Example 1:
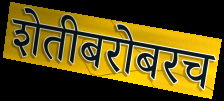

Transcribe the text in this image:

शेतीबरोबरच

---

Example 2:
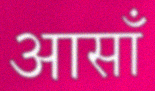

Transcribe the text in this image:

आसाँ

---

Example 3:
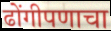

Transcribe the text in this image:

ढोंगीपणाचा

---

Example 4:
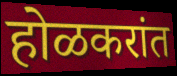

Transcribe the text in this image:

होळकरांत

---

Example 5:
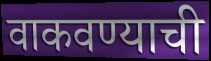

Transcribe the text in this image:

वाकवण्याची